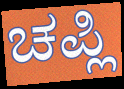
ಚಪ್ಲಿ